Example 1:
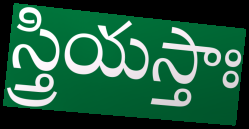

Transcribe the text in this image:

స్త్రియస్తాః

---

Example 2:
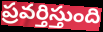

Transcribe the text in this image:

ప్రవర్తిస్తుంది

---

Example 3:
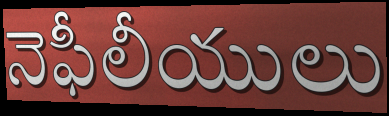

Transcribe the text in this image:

నెఫీలీయులు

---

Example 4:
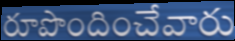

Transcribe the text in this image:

రూపొందించేవారు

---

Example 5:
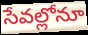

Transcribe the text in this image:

సేవల్లోనూ